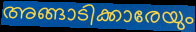
അങ്ങാടിക്കാരേയും